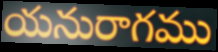
యనురాగము